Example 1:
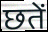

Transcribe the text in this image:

छतें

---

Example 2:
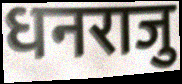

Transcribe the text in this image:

धनराजु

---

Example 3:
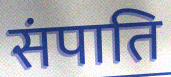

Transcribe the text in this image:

संपाति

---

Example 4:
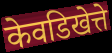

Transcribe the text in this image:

केवडिखेत्ते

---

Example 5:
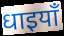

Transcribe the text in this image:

धाइयाँ